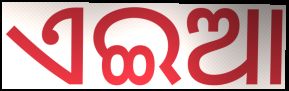
ଏଇଆ